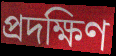
প্রদক্ষিণ